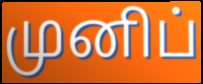
முனிப்